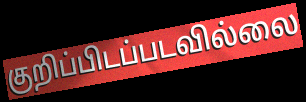
குறிப்பிடப்படவில்லை